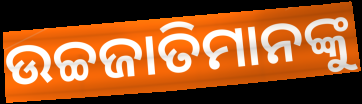
ଉଚ୍ଚଜାତିମାନଙ୍କୁ